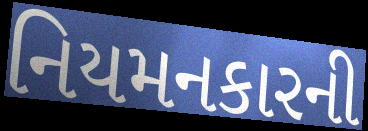
નિયમનકારની